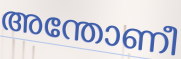
അന്തോണീ